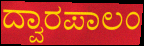
ದ್ವಾರಪಾಲಂ